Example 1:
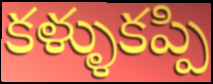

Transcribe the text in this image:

కళ్ళుకప్పి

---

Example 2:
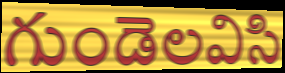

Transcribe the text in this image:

గుండెలవిసి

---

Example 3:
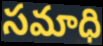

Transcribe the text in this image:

సమాధి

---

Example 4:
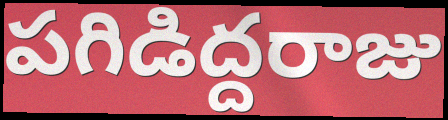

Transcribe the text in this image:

పగిడిద్దరాజు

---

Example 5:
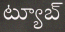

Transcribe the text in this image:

ట్యూబ్